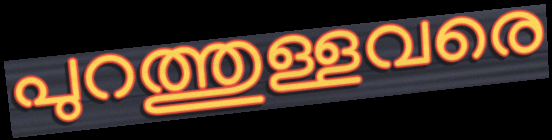
പുറത്തുള്ളവരെ